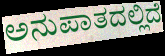
ಅನುಪಾತದಲ್ಲಿದೆ